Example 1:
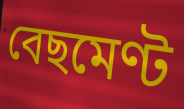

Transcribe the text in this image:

বেছমেণ্ট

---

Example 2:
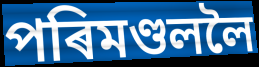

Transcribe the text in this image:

পৰিমণ্ডললৈ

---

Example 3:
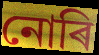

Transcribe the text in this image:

নোৰি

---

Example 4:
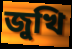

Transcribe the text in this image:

জুখি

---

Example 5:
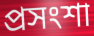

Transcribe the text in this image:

প্ৰসংশা